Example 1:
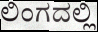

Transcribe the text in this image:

ಲಿಂಗದಲ್ಲಿ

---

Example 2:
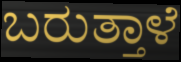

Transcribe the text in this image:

ಬರುತ್ತಾಳೆ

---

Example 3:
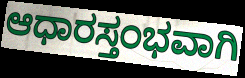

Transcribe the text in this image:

ಆಧಾರಸ್ತಂಭವಾಗಿ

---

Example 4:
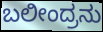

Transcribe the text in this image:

ಬಲೀಂದ್ರನು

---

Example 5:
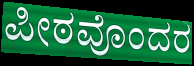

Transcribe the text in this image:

ಪೀಠವೊಂದರ